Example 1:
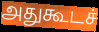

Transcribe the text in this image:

அதுகூடச்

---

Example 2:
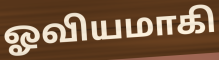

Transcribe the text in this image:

ஓவியமாகி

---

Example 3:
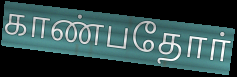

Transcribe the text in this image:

காண்பதோர்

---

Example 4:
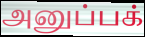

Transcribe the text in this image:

அனுப்பக்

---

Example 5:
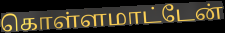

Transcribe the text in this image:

கொள்ளமாட்டேன்